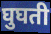
घुघती